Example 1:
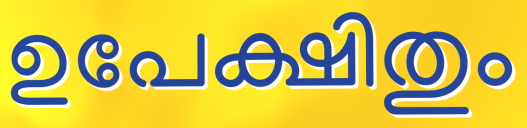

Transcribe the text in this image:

ഉപേക്ഷിതും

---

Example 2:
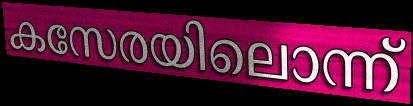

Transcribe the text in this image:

കസേരയിലൊന്ന്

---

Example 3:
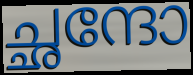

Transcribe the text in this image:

ച്ഛന്ദോ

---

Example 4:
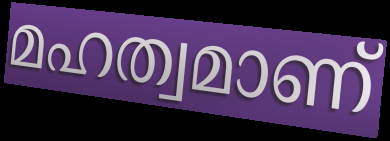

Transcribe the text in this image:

മഹത്വമാണ്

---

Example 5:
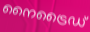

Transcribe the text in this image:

നൈട്രൈഡ്